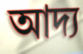
আদ্য